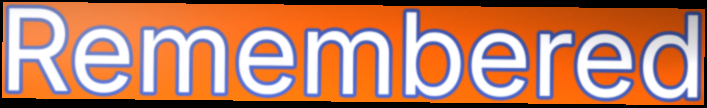
Remembered